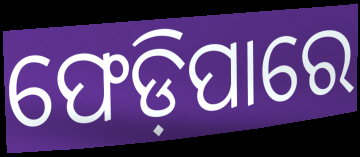
ଫେଡ଼ିପାରେ